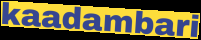
kaadambari